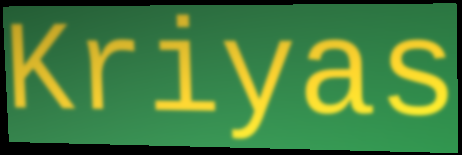
Kriyas